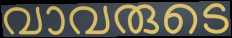
വാവരുടെ